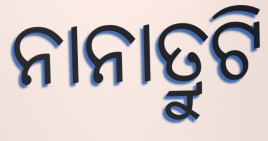
ନାନାତ୍ରୁଟି